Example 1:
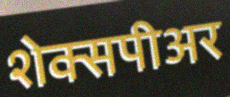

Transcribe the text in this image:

शेक्सपीअर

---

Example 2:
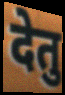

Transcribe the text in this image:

देतु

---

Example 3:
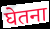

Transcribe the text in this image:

घेतना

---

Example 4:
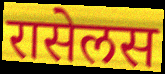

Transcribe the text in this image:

रासेलस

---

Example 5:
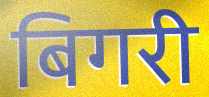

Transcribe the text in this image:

बिगरी